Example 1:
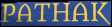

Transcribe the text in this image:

PATHAK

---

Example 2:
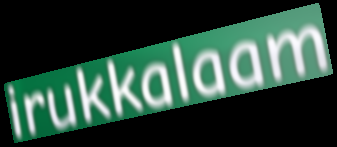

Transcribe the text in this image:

irukkalaam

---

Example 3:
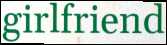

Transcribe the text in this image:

girlfriend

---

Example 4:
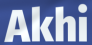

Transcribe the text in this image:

Akhi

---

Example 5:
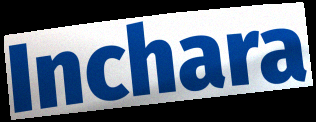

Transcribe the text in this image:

Inchara